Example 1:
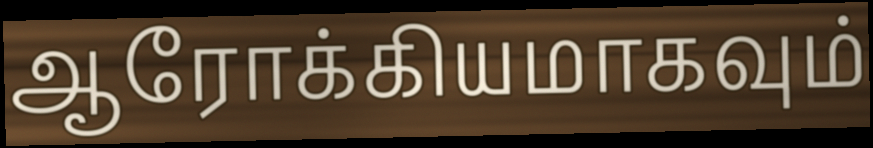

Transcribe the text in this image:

ஆரோக்கியமாகவும்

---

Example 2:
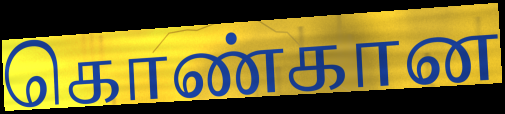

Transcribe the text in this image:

கொண்கான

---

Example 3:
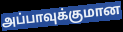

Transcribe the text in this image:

அப்பாவுக்குமான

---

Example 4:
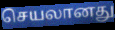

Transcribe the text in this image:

செயலானது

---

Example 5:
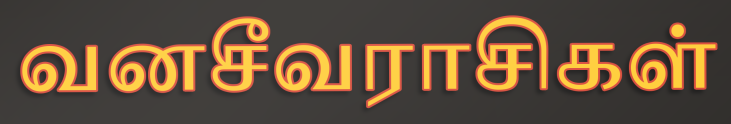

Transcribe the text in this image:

வனசீவராசிகள்